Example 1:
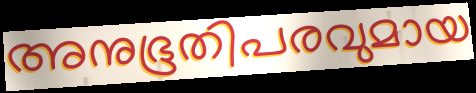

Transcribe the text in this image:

അനുഭൂതിപരവുമായ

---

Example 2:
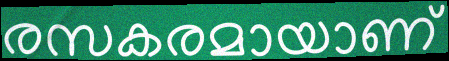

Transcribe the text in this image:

രസകരമായാണ്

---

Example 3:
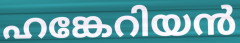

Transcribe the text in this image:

ഹങ്കേറിയൻ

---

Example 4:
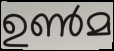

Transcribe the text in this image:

ഉൺമ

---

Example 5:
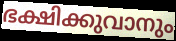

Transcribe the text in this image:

ഭക്ഷിക്കുവാനും